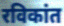
रविकांत